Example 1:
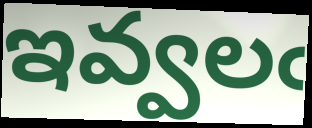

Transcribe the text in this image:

ఇవ్వలఁ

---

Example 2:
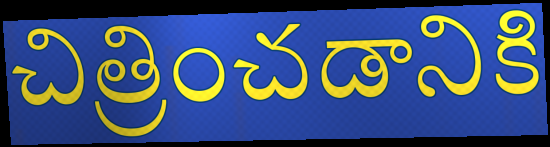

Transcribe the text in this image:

చిత్రించడానికి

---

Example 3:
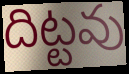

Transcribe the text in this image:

దిట్టవు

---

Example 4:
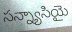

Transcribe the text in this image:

సన్న్యాసియై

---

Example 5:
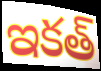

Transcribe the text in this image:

ఇకత్